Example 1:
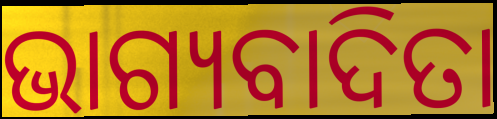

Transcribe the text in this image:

ଭାଗ୍ୟବାଦିତା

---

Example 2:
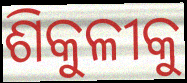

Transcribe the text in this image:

ଶିକୁଳୀକୁ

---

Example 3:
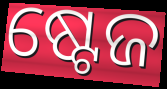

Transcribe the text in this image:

ଷ୍ଟେଜ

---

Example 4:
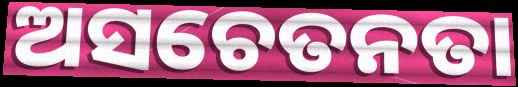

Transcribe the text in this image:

ଅସଚେତନତା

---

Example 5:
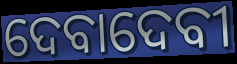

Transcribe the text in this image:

ଦେବାଦେବୀ